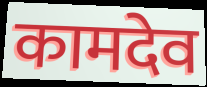
कामदेव